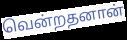
வென்றதனான்